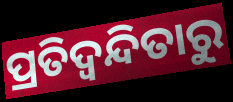
ପ୍ରତିଦ୍ୱନ୍ଦିତାରୁ